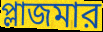
প্লাজমার